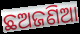
ଛଅଜଣିଆ